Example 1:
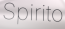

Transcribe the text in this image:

Spirito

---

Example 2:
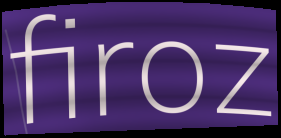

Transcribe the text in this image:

firoz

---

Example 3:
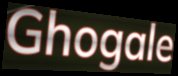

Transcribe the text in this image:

Ghogale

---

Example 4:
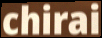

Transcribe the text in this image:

chirai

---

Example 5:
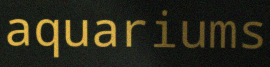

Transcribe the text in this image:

aquariums